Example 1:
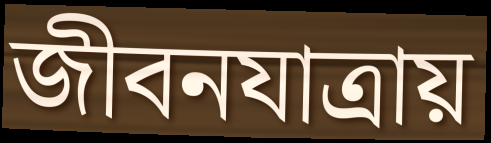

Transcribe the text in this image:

জীবনযাত্রায়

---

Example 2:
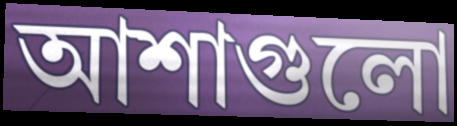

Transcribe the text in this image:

আশাগুলো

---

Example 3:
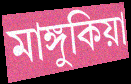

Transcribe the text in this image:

মাঙ্গুকিয়া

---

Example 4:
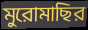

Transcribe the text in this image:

মুরোমাছির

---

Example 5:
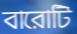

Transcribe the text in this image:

বারোটি